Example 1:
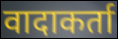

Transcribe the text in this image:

वादाकर्ता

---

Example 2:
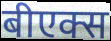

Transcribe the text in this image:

बीएक्स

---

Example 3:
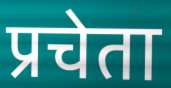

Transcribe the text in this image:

प्रचेता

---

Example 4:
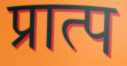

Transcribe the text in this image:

प्रात्प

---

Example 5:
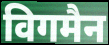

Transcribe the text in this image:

विगमैन